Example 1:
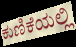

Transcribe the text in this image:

ಕುಣಿಕೆಯಲ್ಲಿ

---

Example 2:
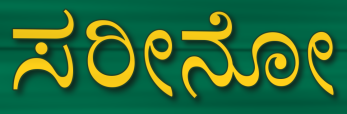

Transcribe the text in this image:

ಸರೀನೋ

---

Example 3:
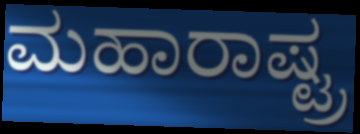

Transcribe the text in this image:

ಮಹಾರಾಷ್ಟ್ರ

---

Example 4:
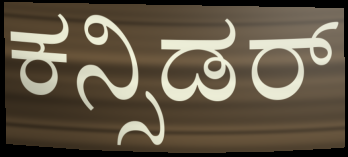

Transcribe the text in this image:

ಕನ್ಸಿಡರ್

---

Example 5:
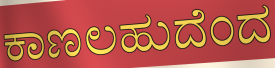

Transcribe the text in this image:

ಕಾಣಲಹುದೆಂದ